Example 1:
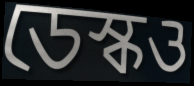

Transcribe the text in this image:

ডেস্কও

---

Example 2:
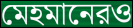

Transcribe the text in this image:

মেহমানেরও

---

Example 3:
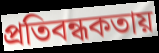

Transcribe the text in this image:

প্রতিবন্ধকতায়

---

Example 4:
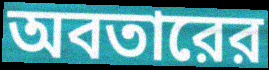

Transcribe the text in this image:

অবতারের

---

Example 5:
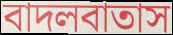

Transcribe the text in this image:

বাদলবাতাস